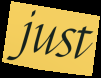
just